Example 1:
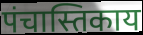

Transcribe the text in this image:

पंचास्तिकाय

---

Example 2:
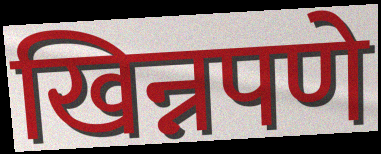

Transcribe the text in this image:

खिन्नपणे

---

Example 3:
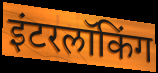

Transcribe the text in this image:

इंटरलॉकिंग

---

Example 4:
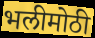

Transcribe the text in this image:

भलीमोठी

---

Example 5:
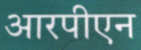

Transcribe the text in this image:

आरपीएन